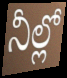
నీల్లో